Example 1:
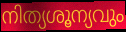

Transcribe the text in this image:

നിത്യശൂന്യവും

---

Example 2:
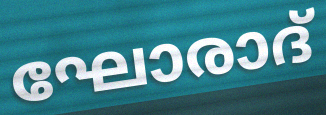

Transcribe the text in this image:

ഘോരാദ്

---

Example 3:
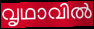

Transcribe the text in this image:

വൃഥാവിൽ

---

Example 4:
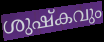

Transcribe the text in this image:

ശുഷ്കവും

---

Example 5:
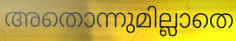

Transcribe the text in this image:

അതൊന്നുമില്ലാതെ